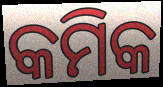
କମିକ